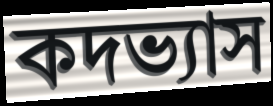
কদভ্যাস